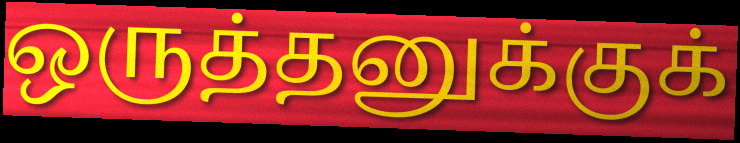
ஒருத்தனுக்குக்